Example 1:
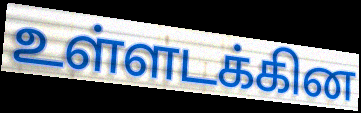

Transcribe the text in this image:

உள்ளடக்கின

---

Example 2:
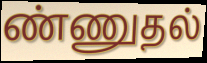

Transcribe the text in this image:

ண்ணுதல்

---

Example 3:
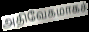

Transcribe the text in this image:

அதிவேகமாகச்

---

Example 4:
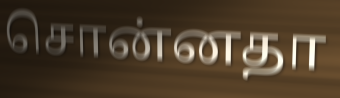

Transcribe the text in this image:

சொன்னதா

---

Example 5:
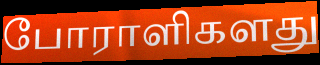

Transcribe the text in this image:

போராளிகளது